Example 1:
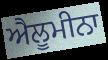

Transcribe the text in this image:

ਐਲੂਮੀਨਾ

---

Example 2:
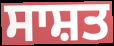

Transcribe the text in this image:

ਸਾਸ਼ਤ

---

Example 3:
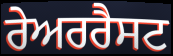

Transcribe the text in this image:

ਰੇਅਰਰੈਸਟ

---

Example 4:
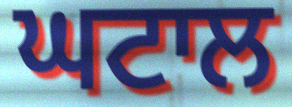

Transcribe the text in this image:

ਘਟਾਲ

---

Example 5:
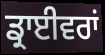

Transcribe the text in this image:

ਡ੍ਰਾਈਵਰਾਂ